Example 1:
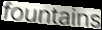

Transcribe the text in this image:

fountains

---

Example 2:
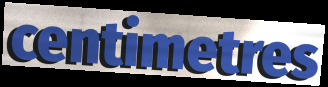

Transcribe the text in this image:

centimetres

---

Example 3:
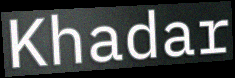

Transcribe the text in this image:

Khadar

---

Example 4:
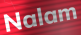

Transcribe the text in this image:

Nalam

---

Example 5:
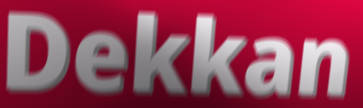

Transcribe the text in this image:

Dekkan